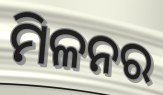
ମିଳନର